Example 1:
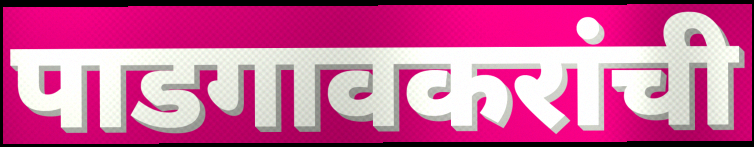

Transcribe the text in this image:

पाडगावकरांची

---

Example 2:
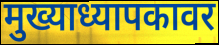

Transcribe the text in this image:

मुख्याध्यापकावर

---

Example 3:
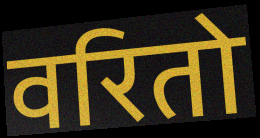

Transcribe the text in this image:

वरितो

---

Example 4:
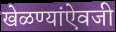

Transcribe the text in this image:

खेळण्यांऐवजी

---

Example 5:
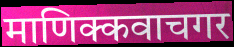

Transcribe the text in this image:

माणिक्कवाचगर